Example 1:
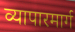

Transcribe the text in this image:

व्यापारमार्ग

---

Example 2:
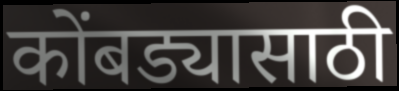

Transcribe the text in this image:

कोंबड्यासाठी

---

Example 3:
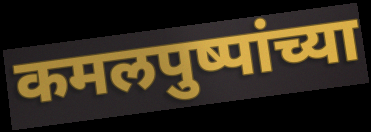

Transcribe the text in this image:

कमलपुष्पांच्या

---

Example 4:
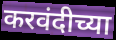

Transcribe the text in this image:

करवंदीच्या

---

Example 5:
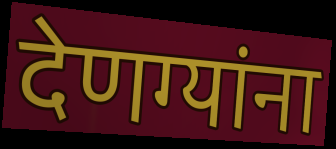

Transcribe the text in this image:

देणग्यांना